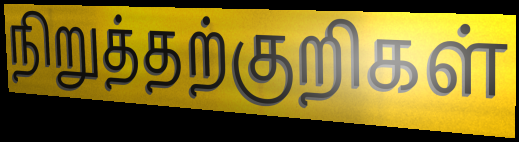
நிறுத்தற்குறிகள்